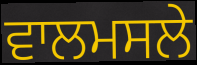
ਵਾਲਮਸਲੇ